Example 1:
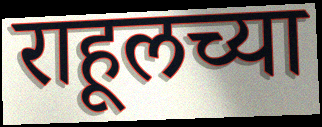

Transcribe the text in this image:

राहूलच्या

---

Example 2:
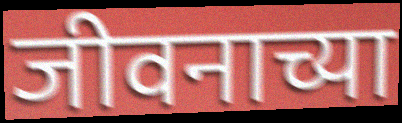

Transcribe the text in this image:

जीवनाच्या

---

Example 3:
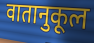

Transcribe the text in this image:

वातानुकूल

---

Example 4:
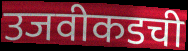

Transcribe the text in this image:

उजवीकडची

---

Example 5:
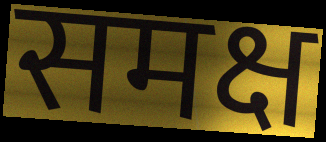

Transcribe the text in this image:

समक्ष